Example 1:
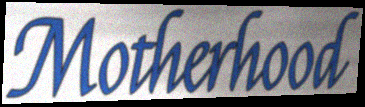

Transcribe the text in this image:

Motherhood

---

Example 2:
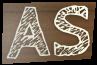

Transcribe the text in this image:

AS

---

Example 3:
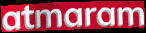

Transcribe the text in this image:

atmaram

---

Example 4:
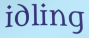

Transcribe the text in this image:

idling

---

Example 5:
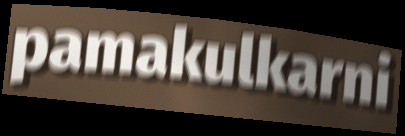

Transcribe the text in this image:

pamakulkarni